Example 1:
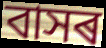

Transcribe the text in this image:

বাসৰ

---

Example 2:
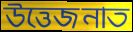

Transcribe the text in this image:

উত্তেজনাত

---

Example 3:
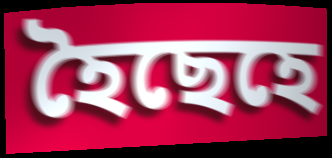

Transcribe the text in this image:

হৈছেহে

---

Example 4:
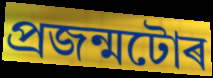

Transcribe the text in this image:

প্ৰজন্মটোৰ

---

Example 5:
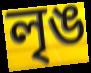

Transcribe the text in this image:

লৃঙ